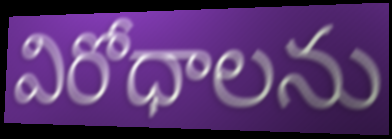
విరోధాలను